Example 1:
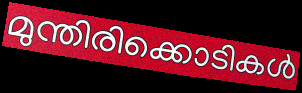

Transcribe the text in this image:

മുന്തിരിക്കൊടികൾ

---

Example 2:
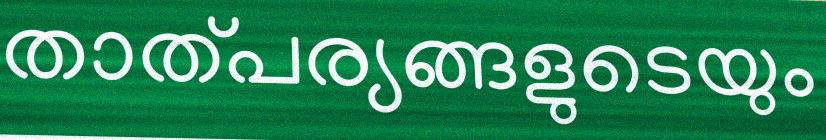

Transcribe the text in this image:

താത്പര്യങ്ങളുടെയും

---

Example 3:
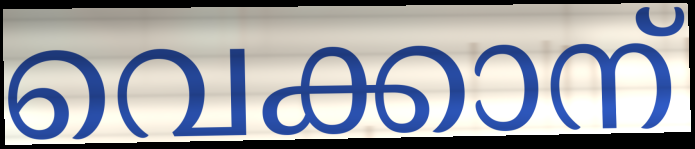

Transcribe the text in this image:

വെക്കാന്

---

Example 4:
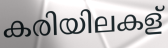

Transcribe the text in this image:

കരിയിലകള്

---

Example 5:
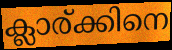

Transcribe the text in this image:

ക്ലാര്ക്കിനെ